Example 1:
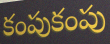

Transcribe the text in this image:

కంపుకంపు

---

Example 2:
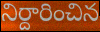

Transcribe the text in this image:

నిర్దారించిన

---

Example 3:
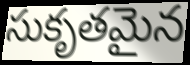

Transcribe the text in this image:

సుకృతమైన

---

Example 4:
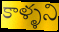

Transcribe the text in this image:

కాళ్ళని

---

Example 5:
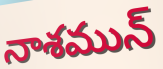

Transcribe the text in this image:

నాశమున్